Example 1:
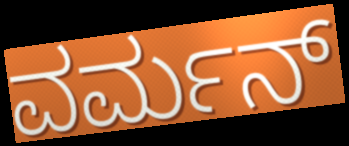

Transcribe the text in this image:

ವರ್ಮನ್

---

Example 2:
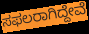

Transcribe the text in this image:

ಸಫಲರಾಗಿದ್ದೇವೆ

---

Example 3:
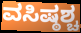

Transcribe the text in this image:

ವಸಿಷ್ಠಶ್ಚ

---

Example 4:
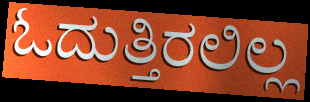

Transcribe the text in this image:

ಓದುತ್ತಿರಲಿಲ್ಲ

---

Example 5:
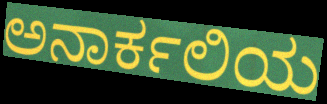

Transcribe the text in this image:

ಅನಾರ್ಕಲಿಯ